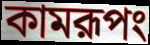
কামরূপং